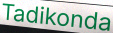
Tadikonda